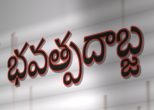
భవత్పదాబ్జ